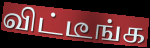
விட்டீங்க